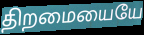
திறமையையே